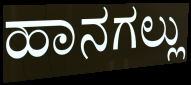
ಹಾನಗಲ್ಲು